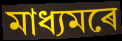
মাধ্যমৰে